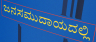
ಜನಸಮುದಾಯದಲ್ಲಿ